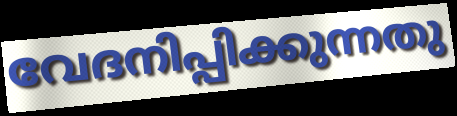
വേദനിപ്പിക്കുന്നതു